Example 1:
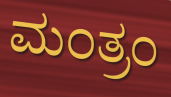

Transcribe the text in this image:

ಮಂತ್ರಂ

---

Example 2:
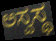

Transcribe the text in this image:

ಅಸ್ವಸ್ಥ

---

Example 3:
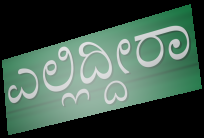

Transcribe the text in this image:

ಎಲ್ಲಿದ್ದೀರಾ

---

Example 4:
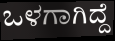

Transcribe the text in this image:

ಒಳಗಾಗಿದ್ದೆ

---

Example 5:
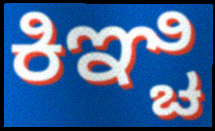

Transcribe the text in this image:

ಕಿಞ್ಚಿ